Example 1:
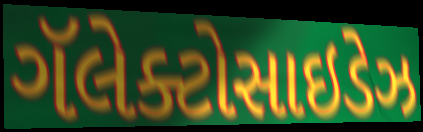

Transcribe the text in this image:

ગૅલેક્ટોસાઇડેઝ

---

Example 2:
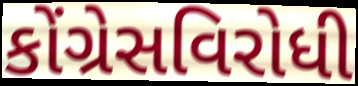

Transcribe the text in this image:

કોંગ્રેસવિરોધી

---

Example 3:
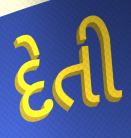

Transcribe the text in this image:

દેતી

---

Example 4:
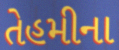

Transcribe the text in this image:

તેહમીના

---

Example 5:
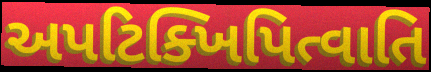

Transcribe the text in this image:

અપટિક્ખિપિત્વાતિ